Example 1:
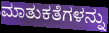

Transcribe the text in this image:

ಮಾತುಕತೆಗಳನ್ನು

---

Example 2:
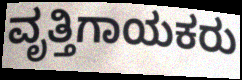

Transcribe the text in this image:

ವೃತ್ತಿಗಾಯಕರು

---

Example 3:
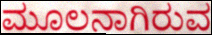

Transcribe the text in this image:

ಮೂಲನಾಗಿರುವ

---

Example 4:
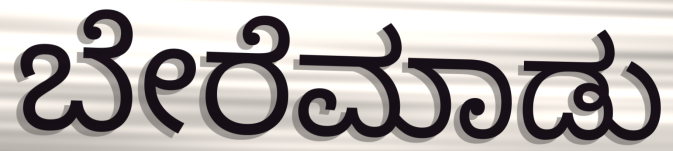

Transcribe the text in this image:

ಬೇರೆಮಾಡು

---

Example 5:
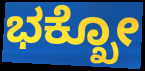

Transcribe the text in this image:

ಭಕ್ಖೋ